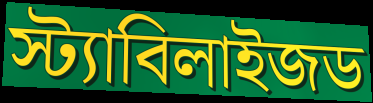
স্ট্যাবিলাইজড